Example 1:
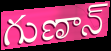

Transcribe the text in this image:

గుణాన్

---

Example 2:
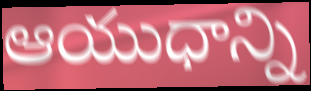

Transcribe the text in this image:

ఆయుధాన్ని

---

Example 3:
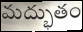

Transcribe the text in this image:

మద్భుతం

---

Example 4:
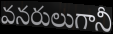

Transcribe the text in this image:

వనరులుగానీ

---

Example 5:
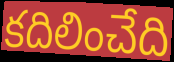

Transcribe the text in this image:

కదిలించేది